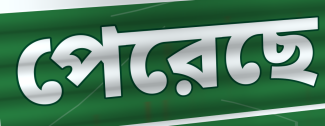
পেরেছে